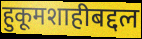
हुकूमशाहीबद्दल